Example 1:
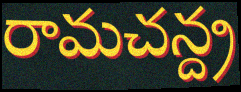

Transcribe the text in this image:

రామచన్ద్ర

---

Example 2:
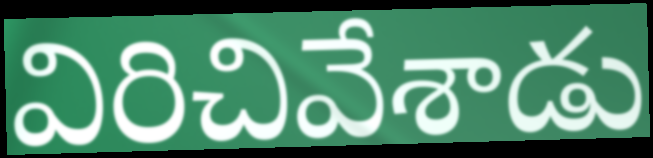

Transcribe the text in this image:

విరిచివేశాడు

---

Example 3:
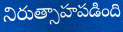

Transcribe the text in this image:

నిరుత్సాహపడింది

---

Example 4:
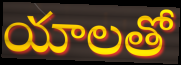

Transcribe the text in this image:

యాలతో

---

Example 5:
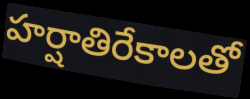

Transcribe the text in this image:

హర్షాతిరేకాలతో